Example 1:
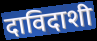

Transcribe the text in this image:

दाविदाशी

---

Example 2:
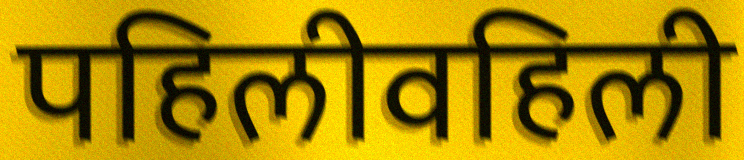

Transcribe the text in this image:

पहिलीवहिली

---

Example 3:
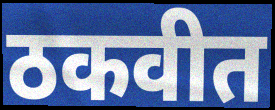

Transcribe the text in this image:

ठकवीत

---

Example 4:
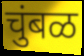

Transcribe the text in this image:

चुंबळ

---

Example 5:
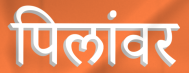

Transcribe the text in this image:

पिलांवर